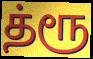
த்ரூ